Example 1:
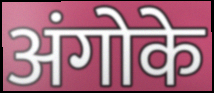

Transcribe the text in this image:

अंगोके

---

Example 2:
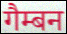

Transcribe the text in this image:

गैम्बन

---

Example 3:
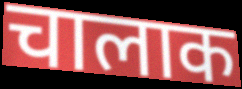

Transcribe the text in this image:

चालाक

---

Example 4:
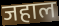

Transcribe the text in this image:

जहाल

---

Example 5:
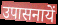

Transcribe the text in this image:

उपासनायें